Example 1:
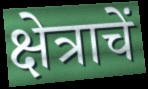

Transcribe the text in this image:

क्षेत्राचें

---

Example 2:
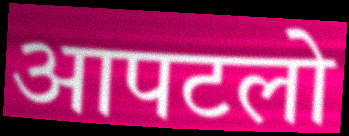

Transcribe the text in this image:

आपटलो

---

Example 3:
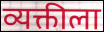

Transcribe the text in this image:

व्यक्तीला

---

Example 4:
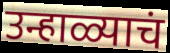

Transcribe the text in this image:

उन्हाळ्याचं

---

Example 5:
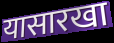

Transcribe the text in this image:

यासारखा